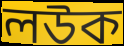
লউক